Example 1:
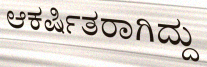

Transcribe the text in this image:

ಆಕರ್ಷಿತರಾಗಿದ್ದು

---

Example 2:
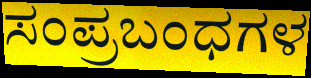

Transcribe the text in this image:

ಸಂಪ್ರಬಂಧಗಳ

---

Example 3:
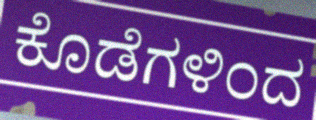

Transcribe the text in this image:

ಕೊಡೆಗಳಿಂದ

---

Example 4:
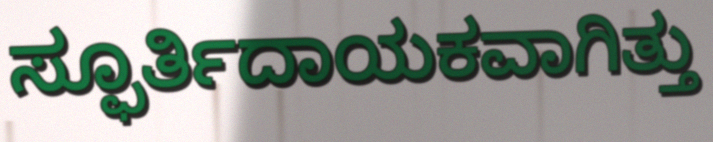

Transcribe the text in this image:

ಸ್ಫೂರ್ತಿದಾಯಕವಾಗಿತ್ತು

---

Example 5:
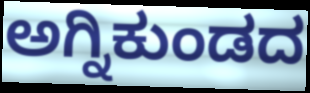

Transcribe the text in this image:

ಅಗ್ನಿಕುಂಡದ